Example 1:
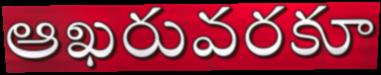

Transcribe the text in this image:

ఆఖరువరకూ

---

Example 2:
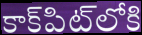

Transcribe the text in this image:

కాక్‌పిట్‌లోకి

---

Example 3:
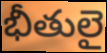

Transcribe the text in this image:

భీతులై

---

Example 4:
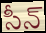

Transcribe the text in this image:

సీన్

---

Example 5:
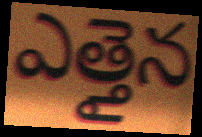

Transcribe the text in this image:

ఎత్తైన